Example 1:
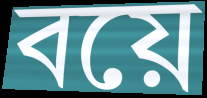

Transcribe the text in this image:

বয়ে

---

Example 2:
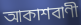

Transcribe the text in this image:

আকাশবাণী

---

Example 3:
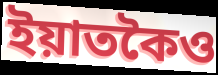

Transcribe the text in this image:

ইয়াতকৈও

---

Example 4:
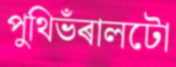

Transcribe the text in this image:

পুথিভঁৰালটো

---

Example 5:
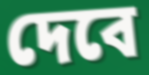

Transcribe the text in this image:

দেবে